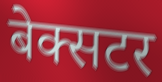
बेक्सटर